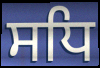
ਸਧਿ